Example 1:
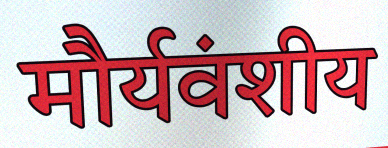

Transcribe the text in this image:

मौर्यवंशीय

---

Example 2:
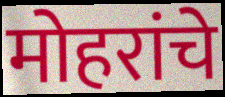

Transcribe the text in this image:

मोहरांचे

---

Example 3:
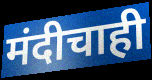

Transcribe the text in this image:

मंदीचाही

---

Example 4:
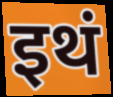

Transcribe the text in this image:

इथं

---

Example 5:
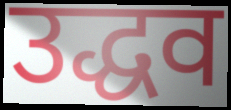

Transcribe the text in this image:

उद्धव